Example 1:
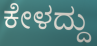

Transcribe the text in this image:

ಕೇಳದ್ದು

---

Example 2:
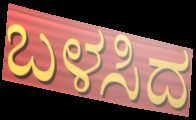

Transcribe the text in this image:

ಬಳಸಿದ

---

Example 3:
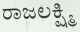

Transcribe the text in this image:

ರಾಜಲಕ್ಷ್ಮಿ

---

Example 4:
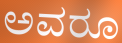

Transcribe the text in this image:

ಅವರೂ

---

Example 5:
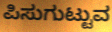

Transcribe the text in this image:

ಪಿಸುಗುಟ್ಟುವ